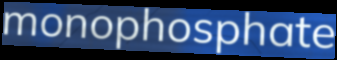
monophosphate